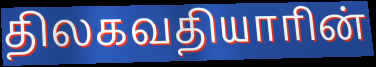
திலகவதியாரின்